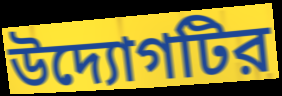
উদ্যোগটির